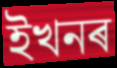
ইখনৰ